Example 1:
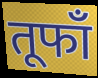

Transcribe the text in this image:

तूफाँ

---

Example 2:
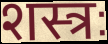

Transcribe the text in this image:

शस्त्रः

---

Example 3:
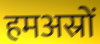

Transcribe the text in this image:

हमअस्रों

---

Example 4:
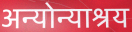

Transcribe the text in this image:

अन्योन्याश्रय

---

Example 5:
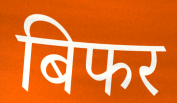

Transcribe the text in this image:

बिफर